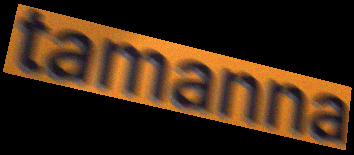
tamanna